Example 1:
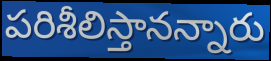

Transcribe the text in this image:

పరిశీలిస్తానన్నారు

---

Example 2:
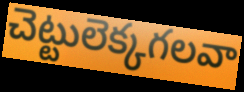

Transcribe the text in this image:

చెట్టులెక్కగలవా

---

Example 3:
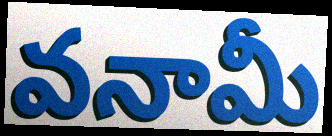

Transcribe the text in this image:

వనామీ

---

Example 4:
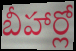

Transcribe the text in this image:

బీహార్లో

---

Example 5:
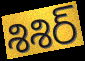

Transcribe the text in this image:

శిశిర్